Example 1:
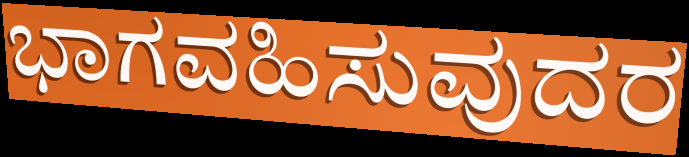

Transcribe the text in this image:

ಭಾಗವಹಿಸುವುದರ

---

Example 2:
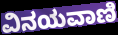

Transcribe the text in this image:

ವಿನಯವಾಣಿ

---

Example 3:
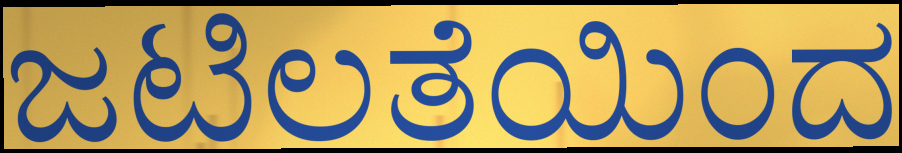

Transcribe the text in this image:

ಜಟಿಲತೆಯಿಂದ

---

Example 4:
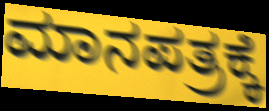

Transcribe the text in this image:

ಮಾನಪತ್ರಕ್ಕೆ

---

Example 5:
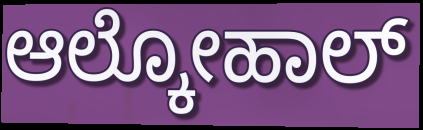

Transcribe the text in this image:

ಆಲ್ಕೋಹಾಲ್